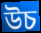
উচ